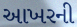
આખરની